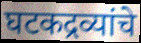
घटकद्रव्यांचे